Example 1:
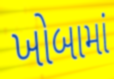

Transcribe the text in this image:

ખોબામાં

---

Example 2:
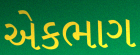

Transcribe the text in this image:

એકભાગ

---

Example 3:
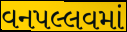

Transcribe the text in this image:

વનપલ્લવમાં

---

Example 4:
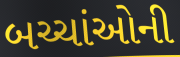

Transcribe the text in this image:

બચ્ચાંઓની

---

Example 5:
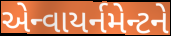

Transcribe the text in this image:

એન્વાયર્નમેન્ટને